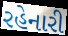
રહેનારી